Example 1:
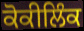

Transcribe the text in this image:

ਕੋਕੀਲਿੰਕ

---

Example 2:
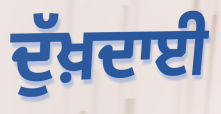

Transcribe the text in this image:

ਦੁੱਖ਼ਦਾਈ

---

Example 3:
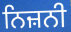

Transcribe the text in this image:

ਨਿਜ਼ਨੀ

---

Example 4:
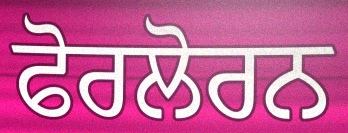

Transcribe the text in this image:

ਫੋਰਲੋਰਨ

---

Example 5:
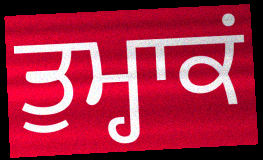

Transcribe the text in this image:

ਤੁਮ੍ਹਾਕਂ